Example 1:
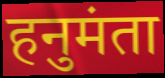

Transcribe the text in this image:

हनुमंता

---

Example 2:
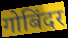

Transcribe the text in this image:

गोबिंदर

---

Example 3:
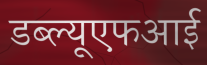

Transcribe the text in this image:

डब्ल्यूएफआई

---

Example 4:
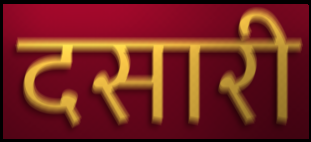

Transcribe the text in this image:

दसारी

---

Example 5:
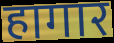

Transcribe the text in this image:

हागार